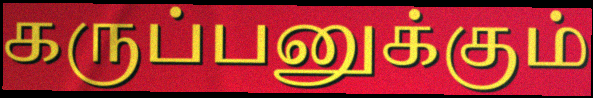
கருப்பனுக்கும்